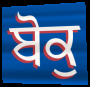
ਬੋਕੁ